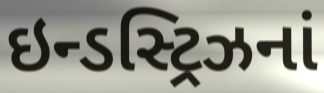
ઇન્ડસ્ટ્રિઝનાં